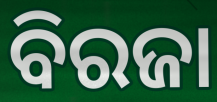
ବିରଜା